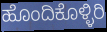
ಹೊಂದಿಕೊಳ್ಳಿರಿ